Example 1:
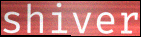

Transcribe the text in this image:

shiver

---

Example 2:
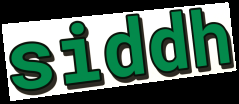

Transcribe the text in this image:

siddh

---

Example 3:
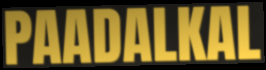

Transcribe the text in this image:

PAADALKAL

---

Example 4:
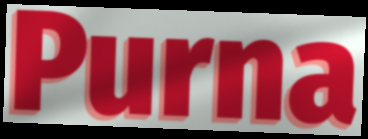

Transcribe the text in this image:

Purna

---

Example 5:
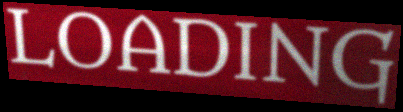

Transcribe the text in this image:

LOADING